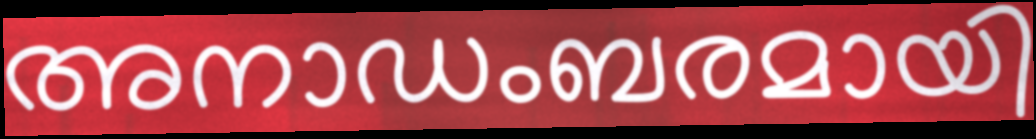
അനാഡംബരമായി